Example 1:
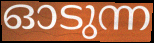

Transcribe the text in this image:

ഓടുന്ന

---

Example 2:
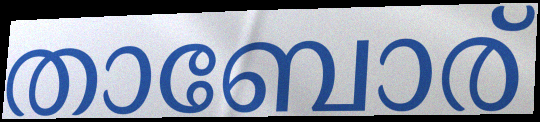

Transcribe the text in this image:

താബോര്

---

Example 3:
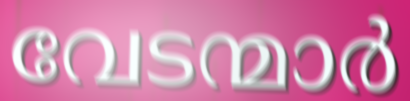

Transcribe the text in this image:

വേടന്മാർ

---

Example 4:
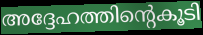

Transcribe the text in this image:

അദ്ദേഹത്തിന്റെകൂടി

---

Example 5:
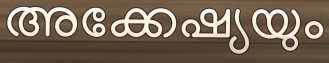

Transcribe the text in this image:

അക്കേഷ്യയും